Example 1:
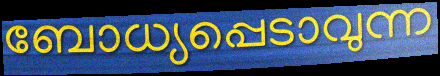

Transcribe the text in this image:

ബോധ്യപ്പെടാവുന്ന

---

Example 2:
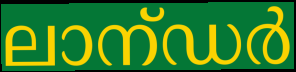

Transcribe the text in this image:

ലാന്ഡർ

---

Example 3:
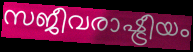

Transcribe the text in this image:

സജീവരാഷ്ട്രീയം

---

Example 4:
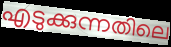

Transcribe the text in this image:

എടുക്കുന്നതിലെ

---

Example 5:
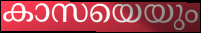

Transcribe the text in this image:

കാസയെയും